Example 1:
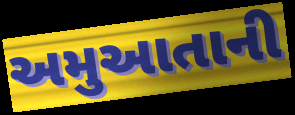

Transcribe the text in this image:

અમુઆતાની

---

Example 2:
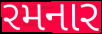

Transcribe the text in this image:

રમનાર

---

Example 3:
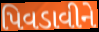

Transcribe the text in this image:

પિવડાવીને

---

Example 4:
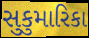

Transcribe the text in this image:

સુકુમારિકા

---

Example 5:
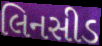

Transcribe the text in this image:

લિનસીડ